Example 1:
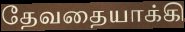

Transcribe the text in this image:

தேவதையாக்கி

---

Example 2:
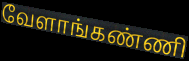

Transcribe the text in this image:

வேளாங்கண்ணி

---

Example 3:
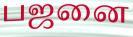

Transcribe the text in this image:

பஜனை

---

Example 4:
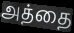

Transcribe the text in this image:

அத்தை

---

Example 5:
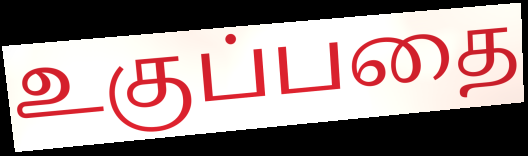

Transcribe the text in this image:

உகுப்பதை